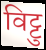
विट्टु